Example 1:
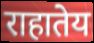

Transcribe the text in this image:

राहातेय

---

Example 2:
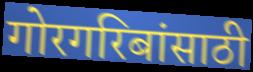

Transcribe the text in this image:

गोरगरिबांसाठी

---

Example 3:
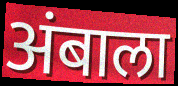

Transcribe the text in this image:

अंबाला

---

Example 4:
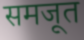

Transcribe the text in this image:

समजूत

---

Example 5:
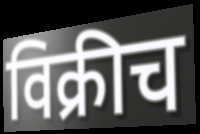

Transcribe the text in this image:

विक्रीच